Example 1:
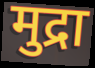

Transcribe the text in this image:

मुद्रा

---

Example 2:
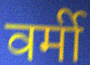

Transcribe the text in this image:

वर्मी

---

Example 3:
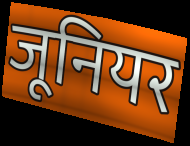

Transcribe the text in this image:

जूनियर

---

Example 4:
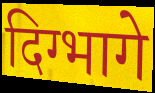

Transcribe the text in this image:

दिग्भागे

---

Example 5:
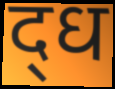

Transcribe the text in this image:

द्ध